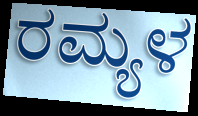
ರಮ್ಯಳ